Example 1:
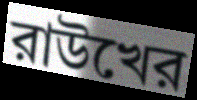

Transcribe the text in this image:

রাউখের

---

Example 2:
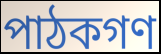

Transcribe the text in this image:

পাঠকগণ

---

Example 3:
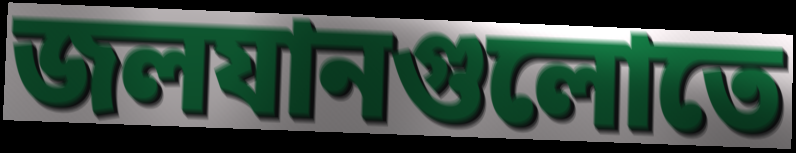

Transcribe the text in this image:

জলযানগুলোতে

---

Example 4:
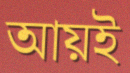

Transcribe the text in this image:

আয়ই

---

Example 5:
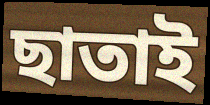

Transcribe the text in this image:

ছাতাই